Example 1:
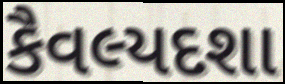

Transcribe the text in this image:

કૈવલ્યદશા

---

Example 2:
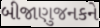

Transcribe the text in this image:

બીજાણુજનકને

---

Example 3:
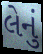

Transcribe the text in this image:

લેનું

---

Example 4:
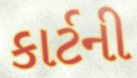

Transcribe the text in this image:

કાર્ટની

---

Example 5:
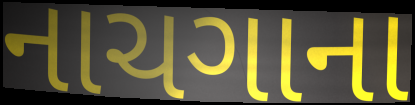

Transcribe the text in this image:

નાચગાના